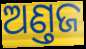
ଅଣ୍ତଜ